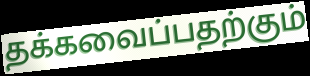
தக்கவைப்பதற்கும்